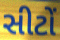
સીટોં